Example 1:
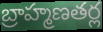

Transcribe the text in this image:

బ్రాహ్మణతర్ల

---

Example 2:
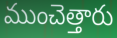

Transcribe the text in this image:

ముంచెత్తారు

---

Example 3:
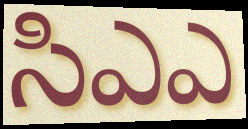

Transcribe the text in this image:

సిఎఎ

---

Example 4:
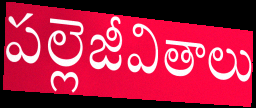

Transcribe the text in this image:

పల్లెజీవితాలు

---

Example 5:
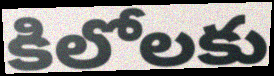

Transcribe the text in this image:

కిలోలకు